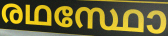
രഥസ്ഥോ